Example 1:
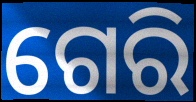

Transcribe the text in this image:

ଗେରି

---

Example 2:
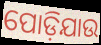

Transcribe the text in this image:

ପୋଡ଼ିଯାଉ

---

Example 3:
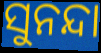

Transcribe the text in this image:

ସୁନନ୍ଦା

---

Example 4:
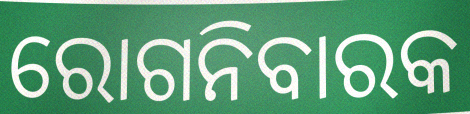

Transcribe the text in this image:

ରୋଗନିବାରକ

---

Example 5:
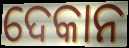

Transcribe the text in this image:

ଦେକାନ